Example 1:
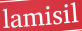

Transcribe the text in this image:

lamisil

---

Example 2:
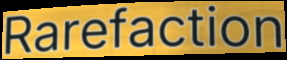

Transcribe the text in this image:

Rarefaction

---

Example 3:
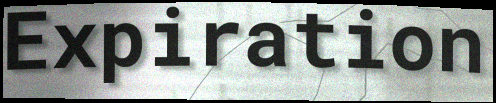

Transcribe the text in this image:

Expiration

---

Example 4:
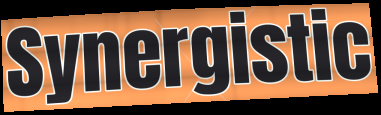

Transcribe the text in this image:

Synergistic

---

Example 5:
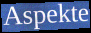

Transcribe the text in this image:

Aspekte